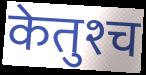
केतुश्च